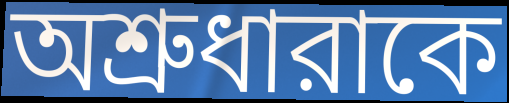
অশ্রুধারাকে